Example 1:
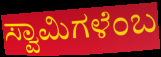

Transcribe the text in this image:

ಸ್ವಾಮಿಗಳೆಂಬ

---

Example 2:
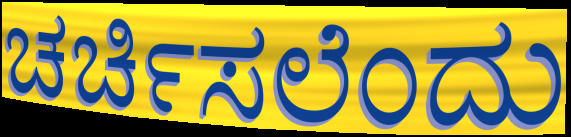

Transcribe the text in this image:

ಚರ್ಚಿಸಲೆಂದು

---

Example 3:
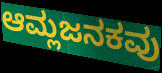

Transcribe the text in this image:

ಆಮ್ಲಜನಕವು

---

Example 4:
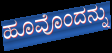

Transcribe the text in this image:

ಹೂವೊಂದನ್ನು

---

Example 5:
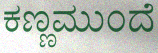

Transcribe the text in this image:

ಕಣ್ಣಮುಂದೆ